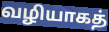
வழியாகத்